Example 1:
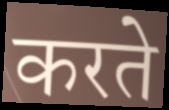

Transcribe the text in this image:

करते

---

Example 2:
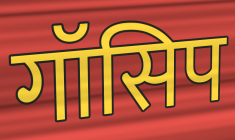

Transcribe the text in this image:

गॉसिप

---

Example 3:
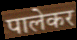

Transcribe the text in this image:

पालेकर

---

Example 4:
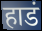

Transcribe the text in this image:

हाडं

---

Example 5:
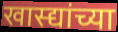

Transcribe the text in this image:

खास्द्यांच्या